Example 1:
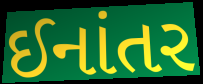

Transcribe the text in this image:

ઈનાંતર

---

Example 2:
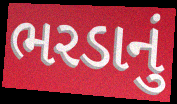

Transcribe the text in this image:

ભરડાનું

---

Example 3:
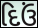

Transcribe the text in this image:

દિઉં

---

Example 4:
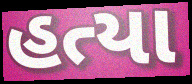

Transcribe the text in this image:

હત્યા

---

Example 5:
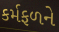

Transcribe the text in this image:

કર્મફળને